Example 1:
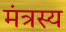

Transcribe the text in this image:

मंत्रस्य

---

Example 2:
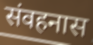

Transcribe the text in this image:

संवहनास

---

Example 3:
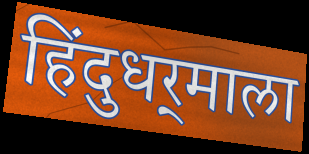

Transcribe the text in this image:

हिंदुधर्माला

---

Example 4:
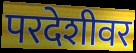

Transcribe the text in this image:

परदेशीवर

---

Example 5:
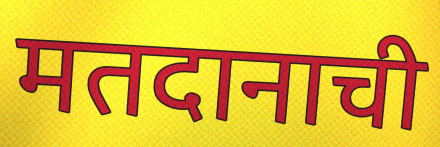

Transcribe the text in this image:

मतदानाची